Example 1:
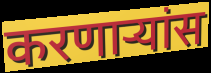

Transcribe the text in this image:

करणाऱ्यांस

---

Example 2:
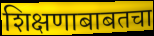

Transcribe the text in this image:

शिक्षणाबाबतचा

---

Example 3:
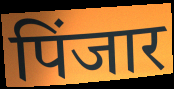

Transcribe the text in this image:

पिंजार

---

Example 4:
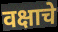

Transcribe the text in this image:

वक्षाचे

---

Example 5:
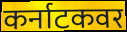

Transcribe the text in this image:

कर्नाटकवर